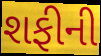
શફીની